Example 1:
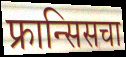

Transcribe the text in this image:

फ्रान्सिसचा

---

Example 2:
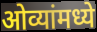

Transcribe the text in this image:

ओव्यांमध्ये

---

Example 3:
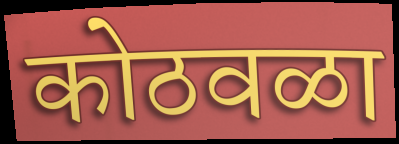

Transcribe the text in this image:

कोठवळा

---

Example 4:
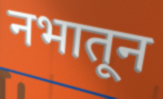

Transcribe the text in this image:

नभातून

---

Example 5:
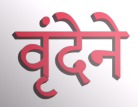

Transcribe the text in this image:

वृंदेने